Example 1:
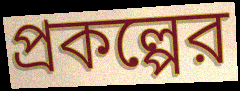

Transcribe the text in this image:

প্রকল্পের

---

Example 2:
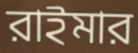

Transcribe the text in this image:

রাইমার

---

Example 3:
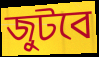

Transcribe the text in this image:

জুটবে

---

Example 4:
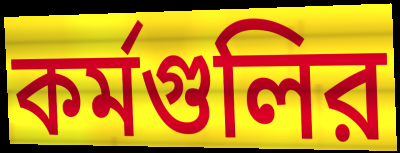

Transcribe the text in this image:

কর্মগুলির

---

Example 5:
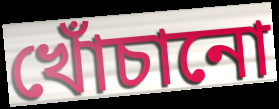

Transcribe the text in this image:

খোঁচানো